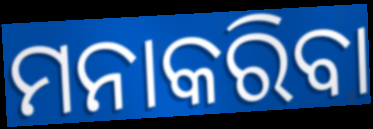
ମନାକରିବା